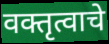
वक्तृत्वाचे